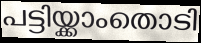
പട്ടിയ്ക്കാംതൊടി